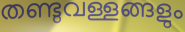
തണ്ടുവള്ളങ്ങളും